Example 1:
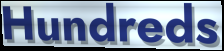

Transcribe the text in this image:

Hundreds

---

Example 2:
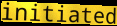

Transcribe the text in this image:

initiated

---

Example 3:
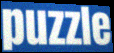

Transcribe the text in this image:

puzzle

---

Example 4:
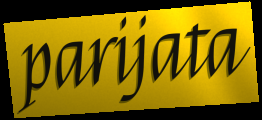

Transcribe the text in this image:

parijata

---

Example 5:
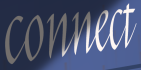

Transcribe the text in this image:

connect